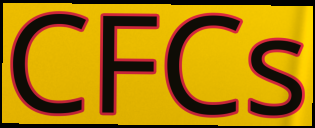
CFCs